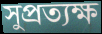
সুপ্রত্যক্ষ